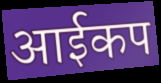
आईकप